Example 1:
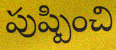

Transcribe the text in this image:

పుష్పించి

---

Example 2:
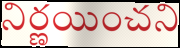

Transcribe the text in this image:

నిర్ణయించని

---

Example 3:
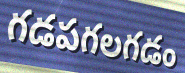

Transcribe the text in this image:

గడపగలగడం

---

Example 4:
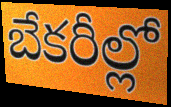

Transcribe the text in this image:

బేకరీల్లో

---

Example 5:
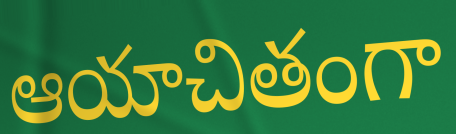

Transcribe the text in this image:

ఆయాచితంగా